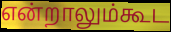
என்றாலும்கூட